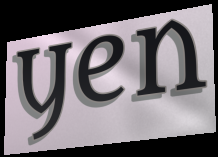
yen